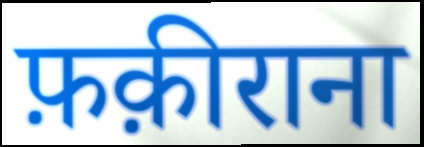
फ़क़ीराना